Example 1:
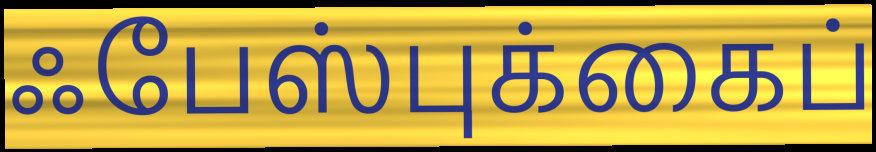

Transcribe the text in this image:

ஃபேஸ்புக்கைப்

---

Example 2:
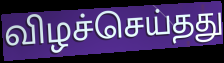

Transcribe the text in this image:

விழச்செய்தது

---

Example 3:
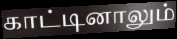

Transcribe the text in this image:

காட்டினாலும்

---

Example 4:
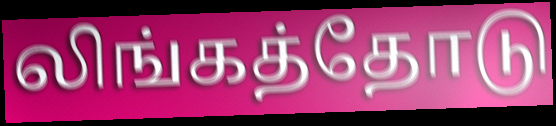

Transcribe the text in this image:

லிங்கத்தோடு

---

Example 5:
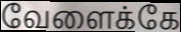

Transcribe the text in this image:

வேளைக்கே